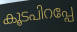
കൂടപിറപ്പേ